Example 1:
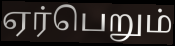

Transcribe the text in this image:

ஏர்பெறும்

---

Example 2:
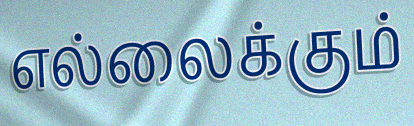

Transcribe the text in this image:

எல்லைக்கும்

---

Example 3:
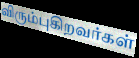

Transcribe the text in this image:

விரும்புகிறவர்கள்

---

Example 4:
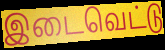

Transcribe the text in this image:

இடைவெட்டு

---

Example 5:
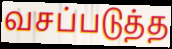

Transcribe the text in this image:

வசப்படுத்த